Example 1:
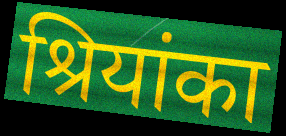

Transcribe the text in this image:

श्रियांका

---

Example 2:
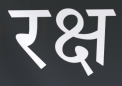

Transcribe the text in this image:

रक्ष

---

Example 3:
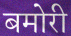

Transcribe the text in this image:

बमोरी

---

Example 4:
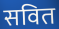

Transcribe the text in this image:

सवित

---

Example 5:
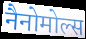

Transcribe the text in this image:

नैनोमोल्स